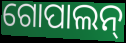
ଗୋପାଲନ୍